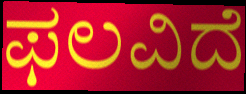
ಫಲವಿದೆ